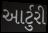
આર્ટુરી